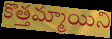
కొత్తమ్మాయిని